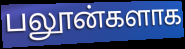
பலூன்களாக